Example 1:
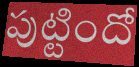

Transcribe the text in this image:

పుట్టిందో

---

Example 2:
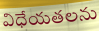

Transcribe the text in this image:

విధేయతలను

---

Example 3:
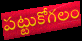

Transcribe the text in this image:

పట్టుకోగలం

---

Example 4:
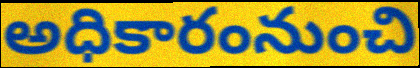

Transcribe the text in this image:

అధికారంనుంచి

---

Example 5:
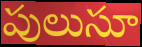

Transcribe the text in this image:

పులుసూ